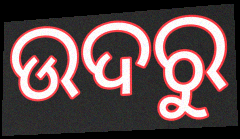
ଉଦରୁ